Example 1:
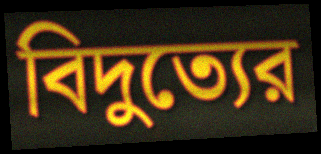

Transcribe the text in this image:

বিদুত্যের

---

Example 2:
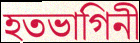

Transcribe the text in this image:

হতভাগিনী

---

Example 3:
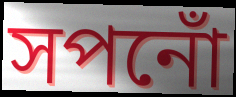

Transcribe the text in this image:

সপনোঁ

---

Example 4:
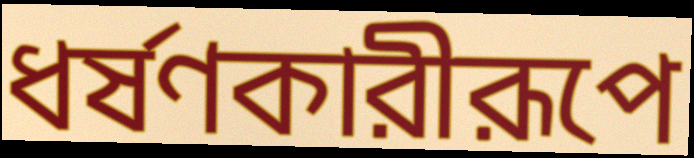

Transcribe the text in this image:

ধর্ষণকারীরূপে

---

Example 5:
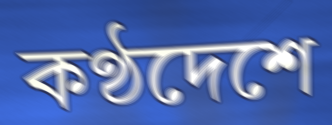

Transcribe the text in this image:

কণ্ঠদেশে